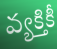
వ్యక్తికీ